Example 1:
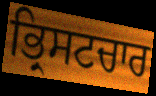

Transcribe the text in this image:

ਭ੍ਰਿਸਟਚਾਰ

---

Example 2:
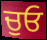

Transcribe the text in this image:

ਚੁਓ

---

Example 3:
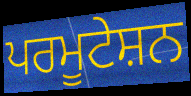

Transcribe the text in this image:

ਪਰਮੂਟੇਸ਼ਨ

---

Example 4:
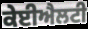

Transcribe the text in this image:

ਕੇਈਐਲਟੀ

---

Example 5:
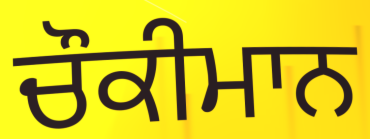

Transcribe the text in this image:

ਚੌਕੀਮਾਨ